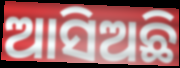
ଆସିଅଛି